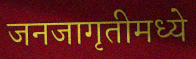
जनजागृतीमध्ये